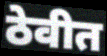
ठेवीत